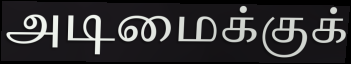
அடிமைக்குக்